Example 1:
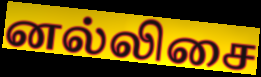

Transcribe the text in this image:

னல்லிசை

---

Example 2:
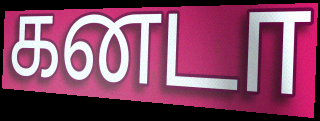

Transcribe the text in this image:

கனடா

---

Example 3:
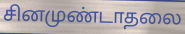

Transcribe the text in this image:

சினமுண்டாதலை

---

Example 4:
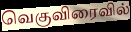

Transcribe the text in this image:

வெகுவிரைவில்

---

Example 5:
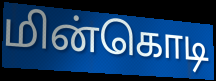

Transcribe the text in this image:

மின்கொடி